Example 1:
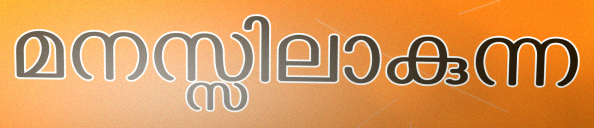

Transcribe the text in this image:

മനസ്സിലാകുന്ന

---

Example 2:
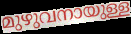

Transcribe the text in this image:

മുഴുവനായുള്ള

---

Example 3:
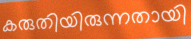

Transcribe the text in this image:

കരുതിയിരുന്നതായി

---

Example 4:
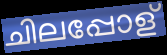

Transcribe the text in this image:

ചിലപ്പോള്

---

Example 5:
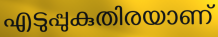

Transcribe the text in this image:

എടുപ്പുകുതിരയാണ്